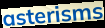
asterisms